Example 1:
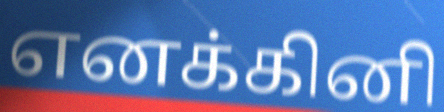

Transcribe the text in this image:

எனக்கினி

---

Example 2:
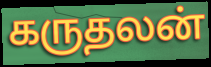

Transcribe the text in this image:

கருதலன்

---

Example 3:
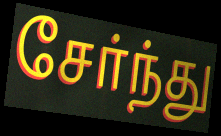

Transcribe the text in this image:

சேர்ந்து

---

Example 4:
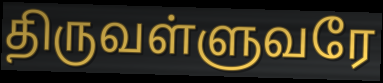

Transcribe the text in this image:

திருவள்ளுவரே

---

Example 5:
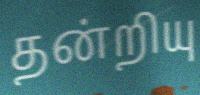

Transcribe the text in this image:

தன்றியு